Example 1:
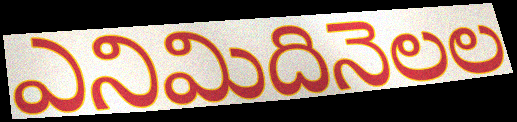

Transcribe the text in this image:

ఎనిమిదినెలల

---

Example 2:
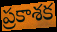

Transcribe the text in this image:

ప్రకాశక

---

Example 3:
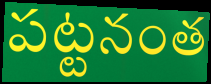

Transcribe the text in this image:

పట్టనంత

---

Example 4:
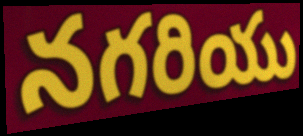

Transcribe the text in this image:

నగరియు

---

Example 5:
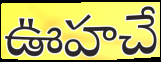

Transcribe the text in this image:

ఊహచే